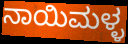
ನಾಯಿಮಳ್ಳ